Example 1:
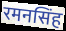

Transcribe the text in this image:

रमनसिंह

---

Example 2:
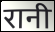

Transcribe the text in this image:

रानी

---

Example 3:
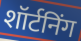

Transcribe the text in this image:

शॉर्टनिंग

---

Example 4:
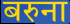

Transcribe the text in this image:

बरुना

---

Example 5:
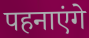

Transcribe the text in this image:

पहनाएंगे